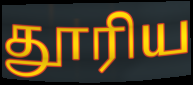
தூரிய